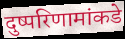
दुष्परिणामांकडे